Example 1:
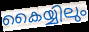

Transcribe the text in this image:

കൈയ്യിലും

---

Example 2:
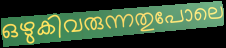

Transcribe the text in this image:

ഒഴുകിവരുന്നതുപോലെ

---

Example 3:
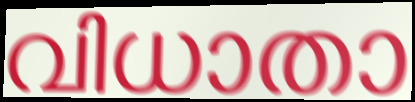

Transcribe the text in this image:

വിധാതാ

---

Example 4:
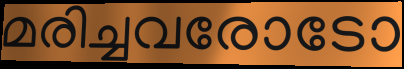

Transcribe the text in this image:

മരിച്ചവരോടോ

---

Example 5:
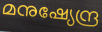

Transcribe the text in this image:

മനുഷ്യേന്ദ്ര